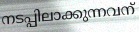
നടപ്പിലാക്കുന്നവന്